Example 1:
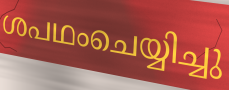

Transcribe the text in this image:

ശപഥംചെയ്യിച്ചു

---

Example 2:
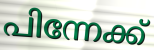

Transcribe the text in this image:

പിന്നേക്ക്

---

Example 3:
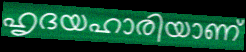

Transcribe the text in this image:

ഹൃദയഹാരിയാണ്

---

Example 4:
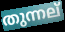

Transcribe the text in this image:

തുന്നല്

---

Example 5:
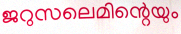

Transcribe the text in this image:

ജറുസലെമിന്റെയും